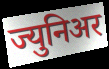
ज्युनिअर